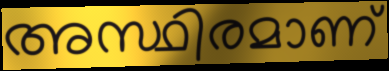
അസ്ഥിരമാണ്